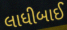
લાધીબાઈ